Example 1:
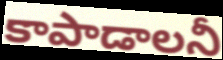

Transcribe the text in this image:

కాపాడాలనీ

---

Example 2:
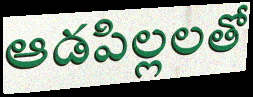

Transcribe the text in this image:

ఆడపిల్లలతో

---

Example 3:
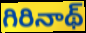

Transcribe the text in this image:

గిరినాథ్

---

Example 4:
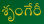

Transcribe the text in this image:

శృంగేరీ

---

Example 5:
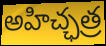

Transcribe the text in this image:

అహిచ్ఛత్ర